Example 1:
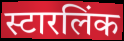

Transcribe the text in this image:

स्टारलिंक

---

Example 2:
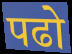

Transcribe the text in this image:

पढो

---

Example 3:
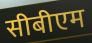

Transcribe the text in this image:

सीबीएम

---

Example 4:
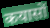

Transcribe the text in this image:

कयासों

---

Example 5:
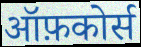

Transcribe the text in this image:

ऑफ़कोर्स